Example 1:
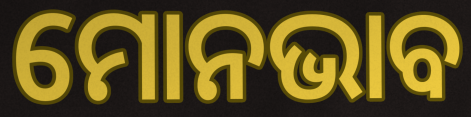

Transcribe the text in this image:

ମୋନଭାବ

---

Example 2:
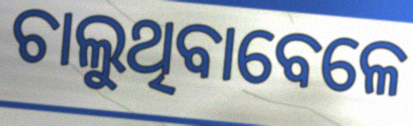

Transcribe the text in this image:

ଚାଲୁଥିବାବେଳେ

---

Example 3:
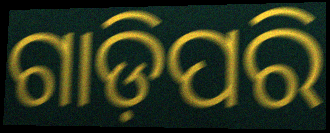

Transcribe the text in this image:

ଗାଡ଼ିପରି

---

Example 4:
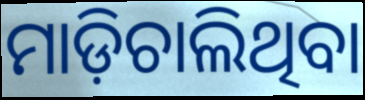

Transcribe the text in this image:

ମାଡ଼ିଚାଲିଥିବା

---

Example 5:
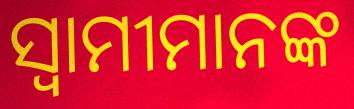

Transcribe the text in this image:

ସ୍ବାମୀମାନଙ୍କ